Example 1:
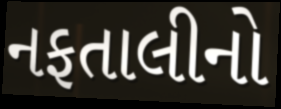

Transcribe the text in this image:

નફતાલીનો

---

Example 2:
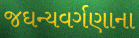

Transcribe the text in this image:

જઘન્યવર્ગણાના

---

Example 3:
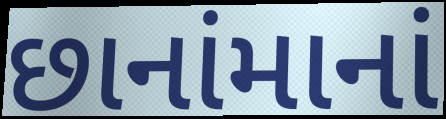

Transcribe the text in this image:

છાનાંમાનાં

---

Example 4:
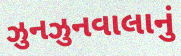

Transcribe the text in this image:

ઝુનઝુનવાલાનું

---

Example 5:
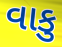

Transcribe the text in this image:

વાકુ